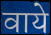
वाये